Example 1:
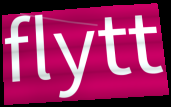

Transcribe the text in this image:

flytt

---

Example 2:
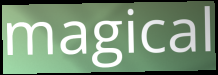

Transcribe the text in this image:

magical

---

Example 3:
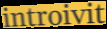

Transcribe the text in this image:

introivit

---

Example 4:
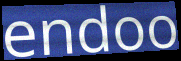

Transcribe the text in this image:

endoo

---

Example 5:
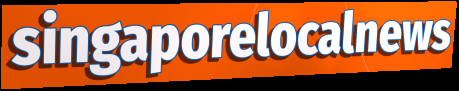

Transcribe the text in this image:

singaporelocalnews